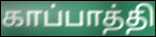
காப்பாத்தி